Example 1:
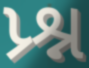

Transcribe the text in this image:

પ્ર્શ્ન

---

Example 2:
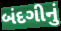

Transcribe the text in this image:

બંદગીનું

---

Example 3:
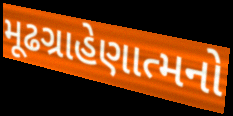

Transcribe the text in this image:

મૂઢગ્રાહેણાત્મનો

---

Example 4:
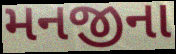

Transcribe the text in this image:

મનજીના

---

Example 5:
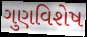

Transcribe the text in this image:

ગુણવિશેષ